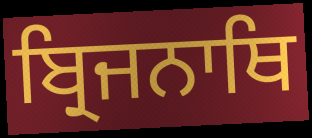
ਬ੍ਰਿਜਨਾਥਿ